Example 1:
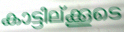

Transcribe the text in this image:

കാട്ടില്ക്കൂടെ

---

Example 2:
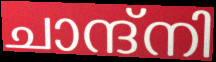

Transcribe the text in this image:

ചാന്ദ്നി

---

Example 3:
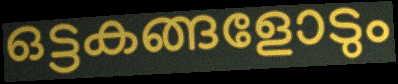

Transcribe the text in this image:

ഒട്ടകങ്ങളോടും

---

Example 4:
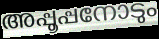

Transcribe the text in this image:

അപ്പൂപ്പനോടും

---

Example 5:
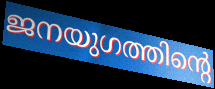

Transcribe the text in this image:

ജനയുഗത്തിന്റെ